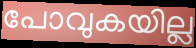
പോവുകയില്ല